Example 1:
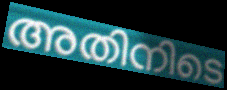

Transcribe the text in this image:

അതിനിടെ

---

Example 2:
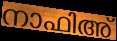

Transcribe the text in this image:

നാഫിഅ്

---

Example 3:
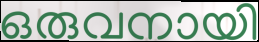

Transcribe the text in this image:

ഒരുവനായി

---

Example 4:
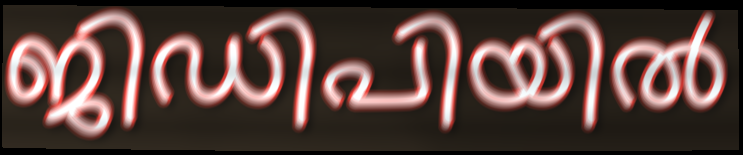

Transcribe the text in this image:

ജിഡിപിയിൽ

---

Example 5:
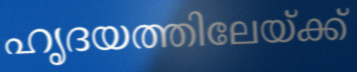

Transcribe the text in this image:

ഹൃദയത്തിലേയ്ക്ക്